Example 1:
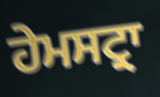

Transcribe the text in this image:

ਹੇਮਸਟ੍ਰਾ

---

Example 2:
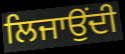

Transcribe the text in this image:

ਲਿਜਾਉਂਦੀ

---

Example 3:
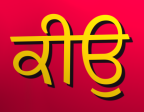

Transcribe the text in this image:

ਕੀਉ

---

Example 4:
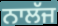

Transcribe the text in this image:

ਨਾਲੱਜ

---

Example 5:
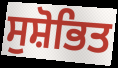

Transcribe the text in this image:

ਸੁਸ਼ੋਭਿਤ